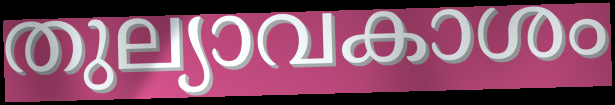
തുല്യാവകാശം